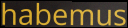
habemus